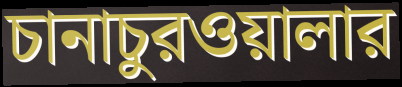
চানাচুরওয়ালার